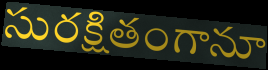
సురక్షితంగానూ